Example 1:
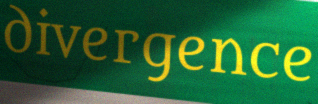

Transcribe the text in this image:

divergence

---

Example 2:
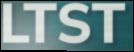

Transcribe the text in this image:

LTST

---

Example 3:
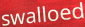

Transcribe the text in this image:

swalloed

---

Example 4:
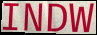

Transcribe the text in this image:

INDW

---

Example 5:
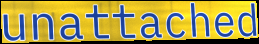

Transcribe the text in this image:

unattached